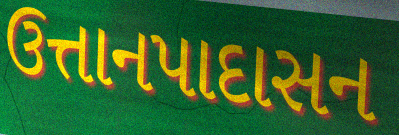
ઉત્તાનપાદાસન